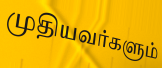
முதியவர்களும்